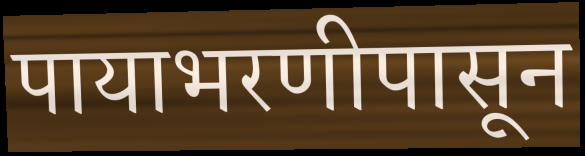
पायाभरणीपासून